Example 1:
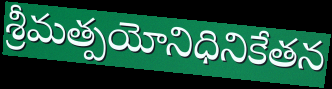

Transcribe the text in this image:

శ్రీమత్పయోనిధినికేతన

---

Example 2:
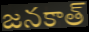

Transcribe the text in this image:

జనకాత్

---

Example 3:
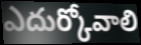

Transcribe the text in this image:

ఎదుర్కోవాలి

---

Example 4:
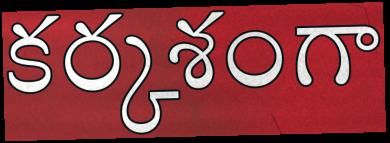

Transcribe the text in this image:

కర్కశంగా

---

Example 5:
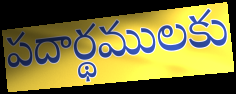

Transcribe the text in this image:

పదార్థములకు